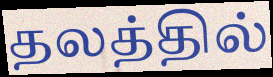
தலத்தில்